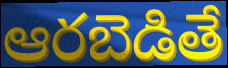
ఆరబెడితే